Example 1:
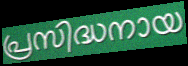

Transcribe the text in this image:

പ്രസിദ്ധനായ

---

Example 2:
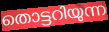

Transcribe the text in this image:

തൊട്ടറിയുന്ന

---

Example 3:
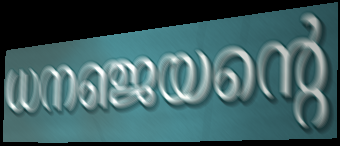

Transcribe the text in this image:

ധനഞ്ജയന്റെ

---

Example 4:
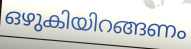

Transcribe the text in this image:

ഒഴുകിയിറങ്ങണം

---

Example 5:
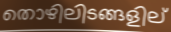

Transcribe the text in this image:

തൊഴിലിടങ്ങളില്